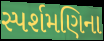
સ્પર્શમણિના